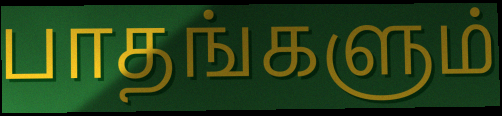
பாதங்களும்